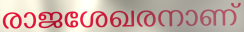
രാജശേഖരനാണ്